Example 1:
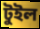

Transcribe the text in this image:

টুইল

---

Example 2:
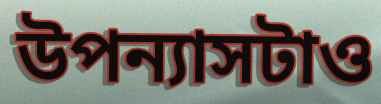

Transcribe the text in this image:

উপন্যাসটাও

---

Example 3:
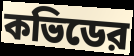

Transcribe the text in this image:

কভিডের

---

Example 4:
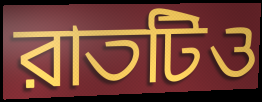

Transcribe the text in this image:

রাতটিও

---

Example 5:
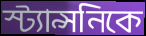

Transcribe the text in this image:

স্ট্যান্সনিকে